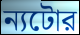
ন্যটোর